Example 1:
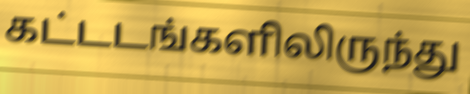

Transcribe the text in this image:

கட்டடங்களிலிருந்து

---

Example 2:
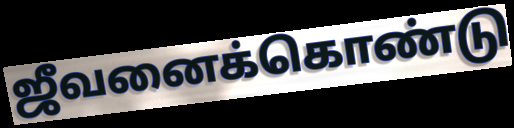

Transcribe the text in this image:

ஜீவனைக்கொண்டு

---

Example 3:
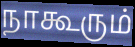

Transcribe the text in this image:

நாகூரும்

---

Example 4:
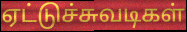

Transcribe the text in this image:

ஏட்டுச்சுவடிகள்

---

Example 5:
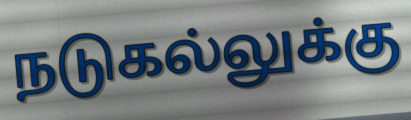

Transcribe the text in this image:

நடுகல்லுக்கு